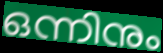
ഒന്നിനും